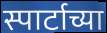
स्पार्टाच्या